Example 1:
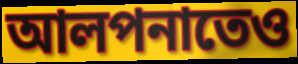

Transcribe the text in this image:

আলপনাতেও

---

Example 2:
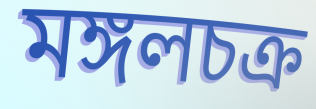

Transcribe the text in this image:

মঙ্গলচক্র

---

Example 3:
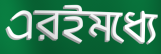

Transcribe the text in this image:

এরইমধ্যে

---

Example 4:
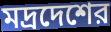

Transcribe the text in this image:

মদ্রদেশের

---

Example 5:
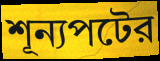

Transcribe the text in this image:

শূন্যপটের